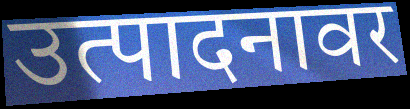
उत्पादनावर